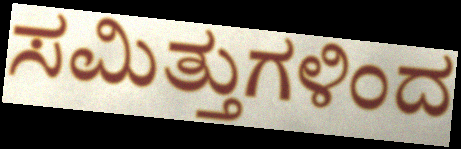
ಸಮಿತ್ತುಗಳಿಂದ